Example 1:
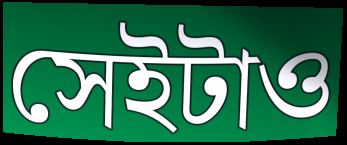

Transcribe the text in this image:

সেইটাও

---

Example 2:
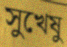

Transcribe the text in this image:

সুখেষু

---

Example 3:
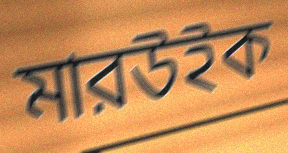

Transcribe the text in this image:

মারউইক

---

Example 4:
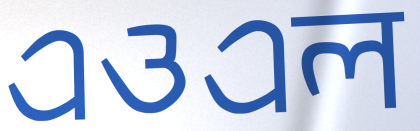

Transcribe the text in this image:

এওএল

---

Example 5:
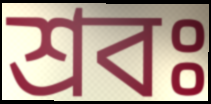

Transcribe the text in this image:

শ্রবঃ